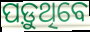
ପଡ଼ୁଥିବେ